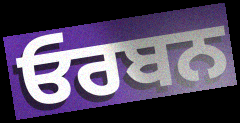
ਓਰਬਨ